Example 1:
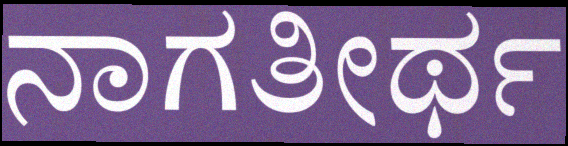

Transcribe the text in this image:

ನಾಗತೀರ್ಥ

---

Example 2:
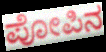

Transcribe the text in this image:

ಪೋಪಿನ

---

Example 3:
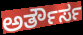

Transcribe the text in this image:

ಅರ್ತೌರ್ಸ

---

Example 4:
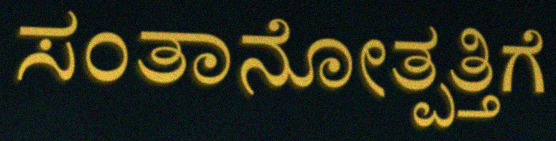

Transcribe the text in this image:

ಸಂತಾನೋತ್ಪತ್ತಿಗೆ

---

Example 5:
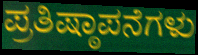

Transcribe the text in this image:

ಪ್ರತಿಷ್ಠಾಪನೆಗಳು